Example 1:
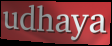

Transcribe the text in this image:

udhaya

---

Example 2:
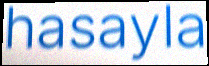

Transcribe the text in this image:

hasayla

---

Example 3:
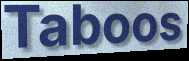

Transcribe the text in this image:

Taboos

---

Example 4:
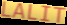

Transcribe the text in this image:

LALIT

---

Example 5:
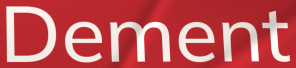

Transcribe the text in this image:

Dement